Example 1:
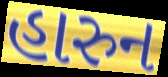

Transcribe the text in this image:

હારુન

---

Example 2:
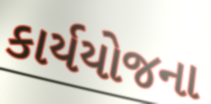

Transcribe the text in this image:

કાર્યયોજના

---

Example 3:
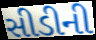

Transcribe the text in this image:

સીડીની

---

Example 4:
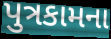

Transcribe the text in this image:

પુત્રકામના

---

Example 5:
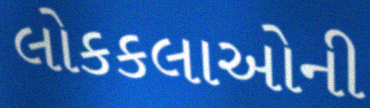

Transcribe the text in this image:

લોકકલાઓની